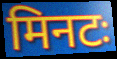
मिनटः